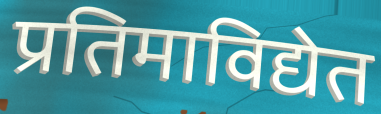
प्रतिमाविद्येत